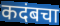
कदंबचा